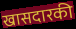
खासदारकी